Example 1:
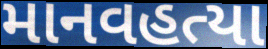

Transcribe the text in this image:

માનવહત્યા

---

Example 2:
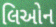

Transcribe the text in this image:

લિઓન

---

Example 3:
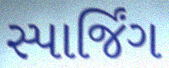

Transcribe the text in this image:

સ્પાર્જિંગ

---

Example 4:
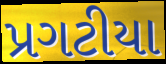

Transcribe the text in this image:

પ્રગટીયા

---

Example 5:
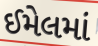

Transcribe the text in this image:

ઈમેલમાં